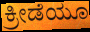
ಕ್ರೀಡೆಯೂ